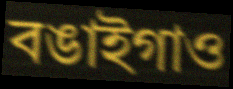
বঙাইগাও